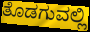
ತೊಡಗುವಲ್ಲಿ